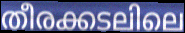
തീരക്കടലിലെ